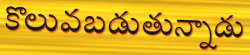
కొలువబడుతున్నాడు